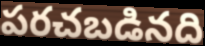
పరచబడినది